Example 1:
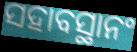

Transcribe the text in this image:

ସହାବସ୍ଥାନଂ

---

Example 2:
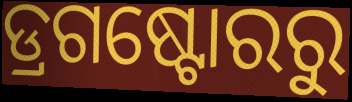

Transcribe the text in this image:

ଡ୍ରଗଷ୍ଟୋରରୁ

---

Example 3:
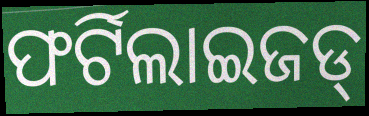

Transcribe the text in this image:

ଫର୍ଟିଲାଇଜଡ୍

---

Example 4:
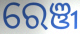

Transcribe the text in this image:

ରେଞ୍ଜ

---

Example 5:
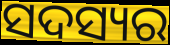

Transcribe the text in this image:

ସଦସ୍ୟର